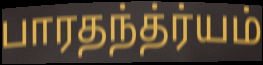
பாரதந்த்ர்யம்